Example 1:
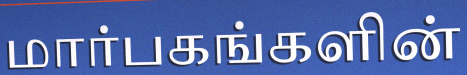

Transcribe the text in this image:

மார்பகங்களின்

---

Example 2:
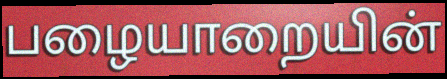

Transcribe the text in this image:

பழையாறையின்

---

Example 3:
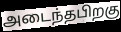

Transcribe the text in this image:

அடைந்தபிறகு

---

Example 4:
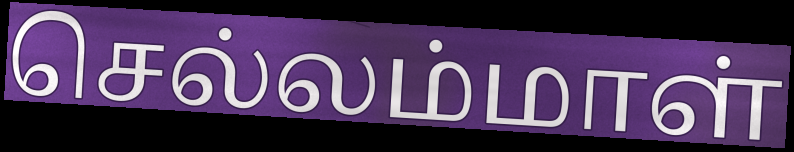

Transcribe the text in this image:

செல்லம்மாள்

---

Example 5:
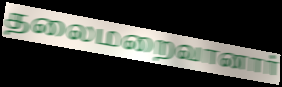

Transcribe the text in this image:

தலைமறைவானார்